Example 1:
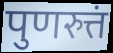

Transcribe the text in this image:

पुणरुत्तं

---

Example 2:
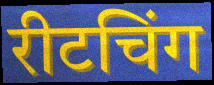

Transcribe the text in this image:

रीटचिंग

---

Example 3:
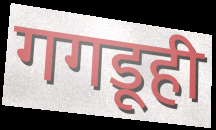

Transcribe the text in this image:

गगडूही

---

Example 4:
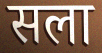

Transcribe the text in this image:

सला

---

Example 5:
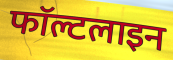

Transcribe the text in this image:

फॉल्टलाइन